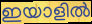
ഇയാളിൽ